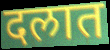
दलात